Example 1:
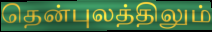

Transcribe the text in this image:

தென்புலத்திலும்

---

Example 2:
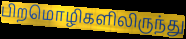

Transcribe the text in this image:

பிறமொழிகளிலிருந்து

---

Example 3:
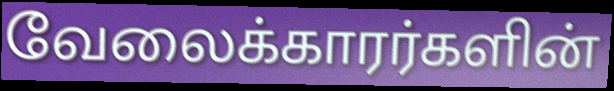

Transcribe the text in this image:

வேலைக்காரர்களின்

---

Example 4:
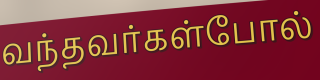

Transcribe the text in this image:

வந்தவர்கள்போல்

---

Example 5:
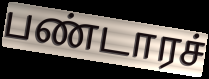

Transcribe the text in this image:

பண்டாரச்